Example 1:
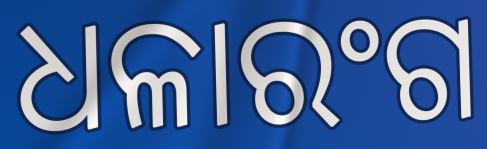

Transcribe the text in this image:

ଧଳାରଂଗ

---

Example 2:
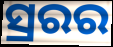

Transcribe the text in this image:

ସ୍ରରର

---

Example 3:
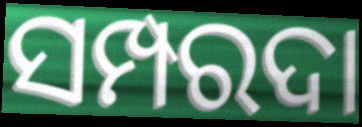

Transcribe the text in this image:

ସମ୍ପରଦା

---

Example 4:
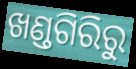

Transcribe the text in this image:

ଖଣ୍ଡଗିରିରୁ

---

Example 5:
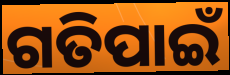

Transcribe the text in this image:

ଗତିପାଇଁ